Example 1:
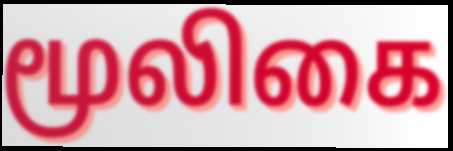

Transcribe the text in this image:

மூலிகை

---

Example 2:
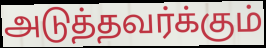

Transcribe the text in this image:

அடுத்தவர்க்கும்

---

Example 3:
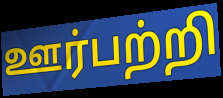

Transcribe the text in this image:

ஊர்பற்றி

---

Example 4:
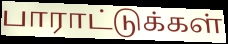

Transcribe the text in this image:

பாராட்டுக்கள்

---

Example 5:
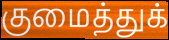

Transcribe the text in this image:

குமைத்துக்